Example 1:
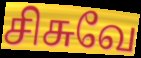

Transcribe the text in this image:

சிசுவே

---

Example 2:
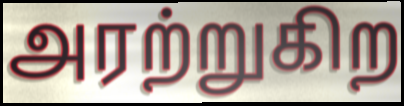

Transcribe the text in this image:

அரற்றுகிற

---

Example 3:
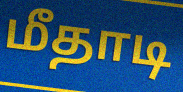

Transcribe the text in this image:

மீதாடி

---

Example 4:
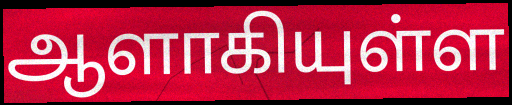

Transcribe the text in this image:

ஆளாகியுள்ள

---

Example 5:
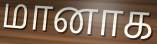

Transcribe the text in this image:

மானாக